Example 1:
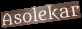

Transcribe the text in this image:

Asolekar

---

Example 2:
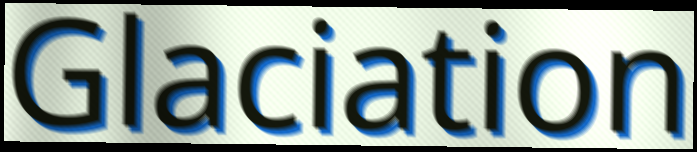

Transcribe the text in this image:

Glaciation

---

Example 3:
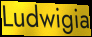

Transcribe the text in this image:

Ludwigia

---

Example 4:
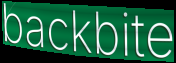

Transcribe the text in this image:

backbite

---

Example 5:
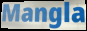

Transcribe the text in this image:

Mangla